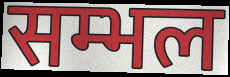
सम्भल